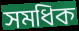
সমধিক